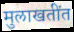
मुलाखतींत